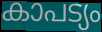
കാപട്യം